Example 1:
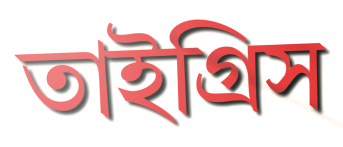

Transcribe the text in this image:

তাইগ্রিস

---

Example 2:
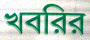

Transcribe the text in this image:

খবরির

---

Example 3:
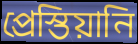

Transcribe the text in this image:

প্রেস্তিয়ানি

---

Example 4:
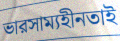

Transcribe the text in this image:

ভারসাম্যহীনতাই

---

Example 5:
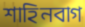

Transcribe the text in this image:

শাহিনবাগ